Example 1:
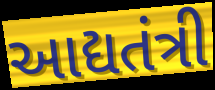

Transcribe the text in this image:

આદ્યતંત્રી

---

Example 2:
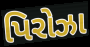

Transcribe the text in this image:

પિરોઝા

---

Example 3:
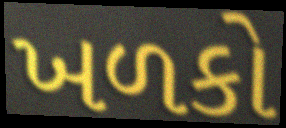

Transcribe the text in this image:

ખળકો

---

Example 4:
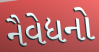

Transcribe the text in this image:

નૈવેદ્યનો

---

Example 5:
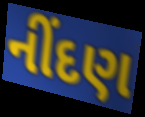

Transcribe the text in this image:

નીંદણ